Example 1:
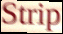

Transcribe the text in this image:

Strip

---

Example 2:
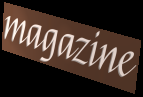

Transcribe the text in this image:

magazine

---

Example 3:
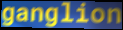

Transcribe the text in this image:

ganglion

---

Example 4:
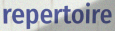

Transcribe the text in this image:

repertoire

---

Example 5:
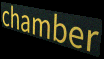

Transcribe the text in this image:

chamber